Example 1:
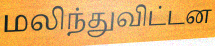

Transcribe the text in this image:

மலிந்துவிட்டன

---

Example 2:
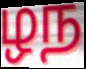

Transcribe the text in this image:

ழந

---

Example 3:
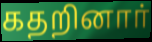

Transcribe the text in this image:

கதறினார்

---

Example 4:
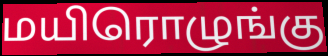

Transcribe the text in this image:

மயிரொழுங்கு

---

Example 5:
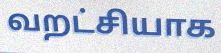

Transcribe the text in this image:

வறட்சியாக